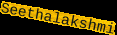
Seethalakshmi